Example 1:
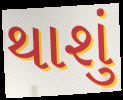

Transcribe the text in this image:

થાશું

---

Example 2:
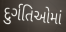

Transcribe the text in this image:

દુર્ગતિઓમાં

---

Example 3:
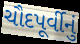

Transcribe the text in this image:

ચૌદપૂર્વીનું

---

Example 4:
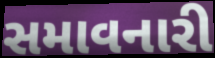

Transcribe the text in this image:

સમાવનારી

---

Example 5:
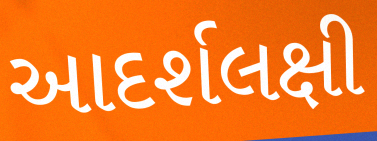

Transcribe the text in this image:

આદર્શલક્ષી